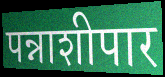
पन्नाशीपार